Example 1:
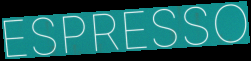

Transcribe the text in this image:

ESPRESSO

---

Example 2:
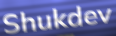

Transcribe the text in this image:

Shukdev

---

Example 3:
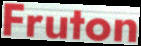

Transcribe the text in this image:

Fruton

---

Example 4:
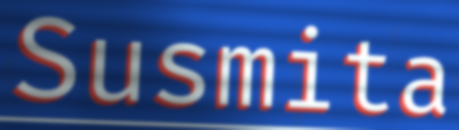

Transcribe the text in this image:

Susmita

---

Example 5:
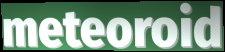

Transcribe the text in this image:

meteoroid